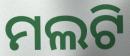
ମଲଟି